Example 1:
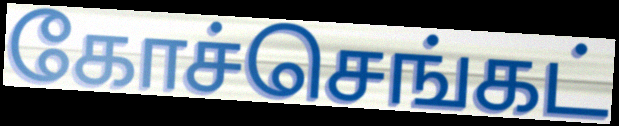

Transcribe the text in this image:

கோச்செங்கட்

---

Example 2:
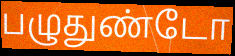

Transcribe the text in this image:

பழுதுண்டோ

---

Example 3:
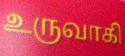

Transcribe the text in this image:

உருவாகி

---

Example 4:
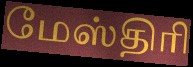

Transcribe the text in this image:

மேஸ்திரி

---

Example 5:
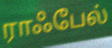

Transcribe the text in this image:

ராஃபேல்